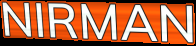
NIRMAN